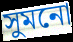
সুমনো